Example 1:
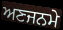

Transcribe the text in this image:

ਅਣਜਨਮੇ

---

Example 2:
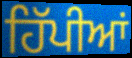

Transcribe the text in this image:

ਹਿੱਪੀਆਂ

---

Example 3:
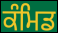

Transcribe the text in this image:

ਕੰਮਿਡ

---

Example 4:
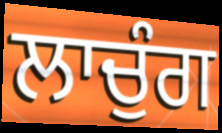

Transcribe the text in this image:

ਲਾਚੁੰਗ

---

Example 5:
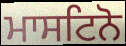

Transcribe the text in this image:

ਮਾਸਟਿਨੋ